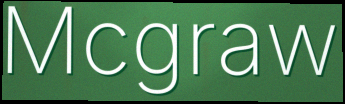
Mcgraw